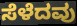
ಸೆಳೆದವು